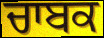
ਚਾਬਕ